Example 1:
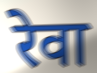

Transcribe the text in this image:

रेवा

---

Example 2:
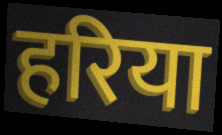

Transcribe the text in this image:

हरिया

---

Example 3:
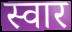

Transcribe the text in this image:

स्वार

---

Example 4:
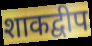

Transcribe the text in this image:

शाकद्वीप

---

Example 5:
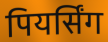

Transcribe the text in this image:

पियर्सिंग